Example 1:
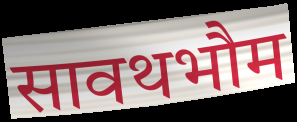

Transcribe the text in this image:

सावथभौम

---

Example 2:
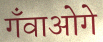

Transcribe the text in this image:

गँवाओगे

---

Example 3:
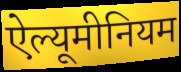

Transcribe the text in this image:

ऐल्यूमीनियम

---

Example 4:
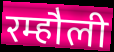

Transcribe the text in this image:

रम्हौली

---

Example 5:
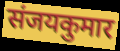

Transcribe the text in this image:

संजयकुमार